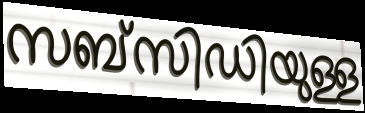
സബ്സിഡിയുള്ള